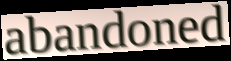
abandoned